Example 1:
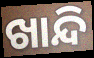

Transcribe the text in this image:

ଖାନ୍ଦି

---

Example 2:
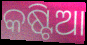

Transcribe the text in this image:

କଷ୍ଟିଆ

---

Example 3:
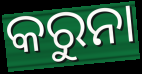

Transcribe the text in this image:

କରୁନା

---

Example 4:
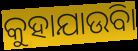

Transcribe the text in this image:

କୁହାଯାଉିବା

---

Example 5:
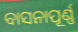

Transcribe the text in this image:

ବାସନାପୂର୍ଣ୍ଣ